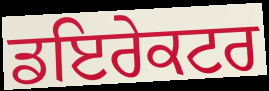
ਡਇਰੇਕਟਰ